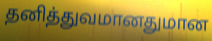
தனித்துவமானதுமான